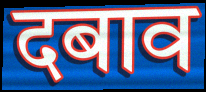
दबाव